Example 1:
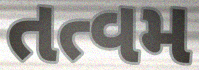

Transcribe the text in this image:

તત્વમ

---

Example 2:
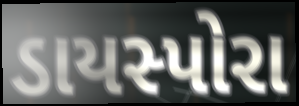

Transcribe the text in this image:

ડાયસ્પોરા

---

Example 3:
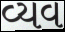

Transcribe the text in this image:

વ્યવ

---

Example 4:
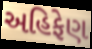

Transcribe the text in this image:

અહિફેણ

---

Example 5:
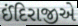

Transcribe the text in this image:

ઈંદિરાજીએ